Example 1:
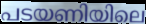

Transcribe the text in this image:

പടയണിയിലെ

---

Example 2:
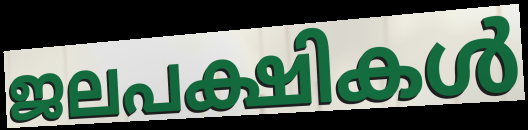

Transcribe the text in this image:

ജലപക്ഷികൾ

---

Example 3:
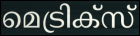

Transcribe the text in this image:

മെട്രിക്സ്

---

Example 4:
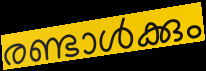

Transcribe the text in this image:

രണ്ടാൾക്കും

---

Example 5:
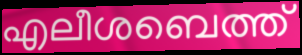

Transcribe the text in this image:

എലീശബെത്ത്